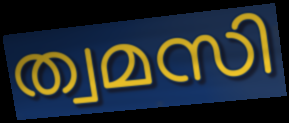
ത്വമസി